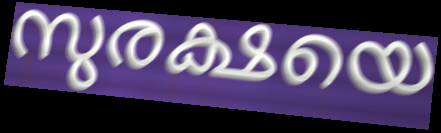
സുരക്ഷയെ